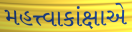
મહત્ત્વાકાંક્ષાએ